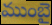
ముంబై